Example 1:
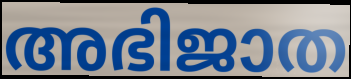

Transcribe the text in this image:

അഭിജാത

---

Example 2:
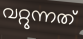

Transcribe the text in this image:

വറ്റുന്നത്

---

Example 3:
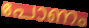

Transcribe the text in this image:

പോണം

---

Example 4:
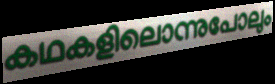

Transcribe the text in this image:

കഥകളിലൊന്നുപോലും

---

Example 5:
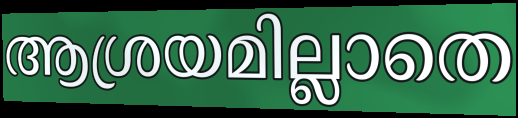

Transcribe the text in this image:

ആശ്രയമില്ലാതെ